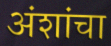
अंशांचा